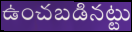
ఉంచబడినట్టు